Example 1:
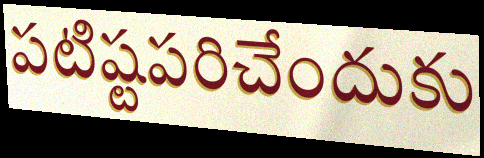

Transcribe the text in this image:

పటిష్టపరిచేందుకు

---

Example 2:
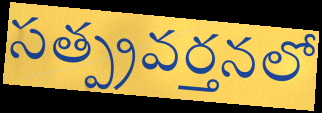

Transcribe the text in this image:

సత్ప్రవర్తనలో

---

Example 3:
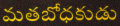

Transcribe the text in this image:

మతబోధకుడు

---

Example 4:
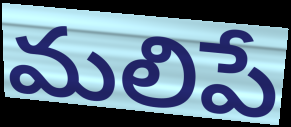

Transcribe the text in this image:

మలిపే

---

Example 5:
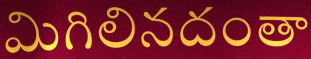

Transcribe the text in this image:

మిగిలినదంతా